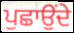
ਪੁਛਾਉਂਦੇ